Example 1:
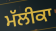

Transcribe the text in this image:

ਮੱਲੀਕਾ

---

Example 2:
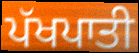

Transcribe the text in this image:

ਪੱਖਪਾਤੀ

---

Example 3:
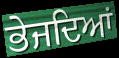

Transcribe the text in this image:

ਭੇਜਦਿਆਂ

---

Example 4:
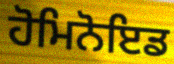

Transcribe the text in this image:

ਹੋਮਿਨੋਇਡ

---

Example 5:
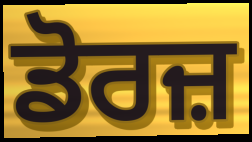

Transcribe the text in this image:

ਡੋਰਜ਼